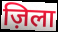
ज़िला